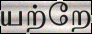
யற்றே